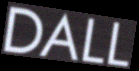
DALL